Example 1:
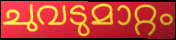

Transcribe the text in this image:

ചുവടുമാറ്റം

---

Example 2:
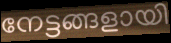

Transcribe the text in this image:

നേട്ടങ്ങളായി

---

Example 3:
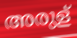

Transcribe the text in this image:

അരുള്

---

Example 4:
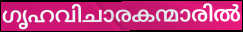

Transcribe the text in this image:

ഗൃഹവിചാരകന്മാരിൽ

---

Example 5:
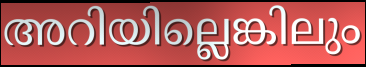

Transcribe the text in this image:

അറിയില്ലെങ്കിലും